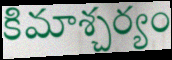
కిమాశ్చర్యం